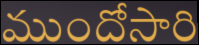
ముందోసారి